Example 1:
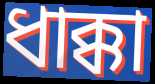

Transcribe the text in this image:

ধাক্কা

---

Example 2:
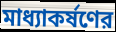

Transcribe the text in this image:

মাধ্যাকর্ষণের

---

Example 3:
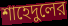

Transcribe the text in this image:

শাহেদুলের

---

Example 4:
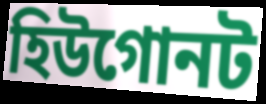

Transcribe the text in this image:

হিউগোনট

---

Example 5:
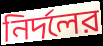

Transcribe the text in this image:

নির্দলের